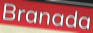
Branada